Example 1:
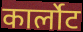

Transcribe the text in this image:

कार्लोट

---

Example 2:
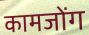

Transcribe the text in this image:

कामजोंग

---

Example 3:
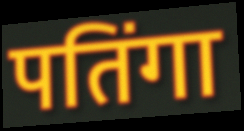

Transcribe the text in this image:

पतिंगा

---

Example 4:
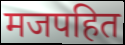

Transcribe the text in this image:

मजपहित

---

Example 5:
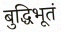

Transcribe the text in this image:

बुद्धिभूतं